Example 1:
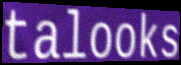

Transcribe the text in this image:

talooks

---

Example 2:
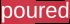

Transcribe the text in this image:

poured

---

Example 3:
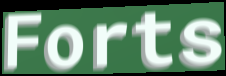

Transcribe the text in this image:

Forts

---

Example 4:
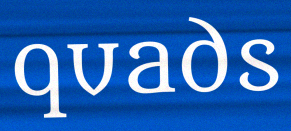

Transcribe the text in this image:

quads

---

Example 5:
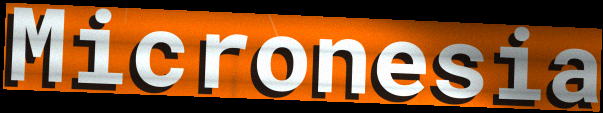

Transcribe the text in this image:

Micronesia